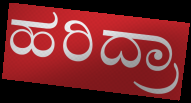
ಹರಿದ್ರಾ